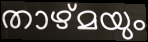
താഴ്മയും